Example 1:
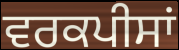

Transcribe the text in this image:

ਵਰਕਪੀਸਾਂ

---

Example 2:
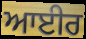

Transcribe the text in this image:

ਆਈਰ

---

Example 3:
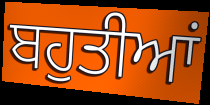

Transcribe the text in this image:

ਬਹੁਤੀਆਂ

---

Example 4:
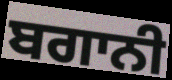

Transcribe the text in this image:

ਬਗਾਨੀ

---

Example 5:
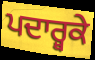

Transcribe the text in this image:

ਪਦਾਰ੍ਥਕੇ